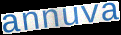
annuva